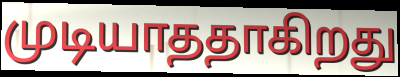
முடியாததாகிறது